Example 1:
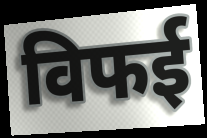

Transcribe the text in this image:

विफई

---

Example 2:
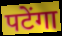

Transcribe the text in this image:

पटेंगा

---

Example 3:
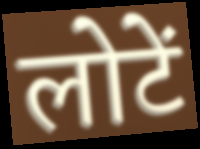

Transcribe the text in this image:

लोटें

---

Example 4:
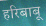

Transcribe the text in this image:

हरिबाबू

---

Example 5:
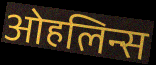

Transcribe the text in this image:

ओहलिन्स